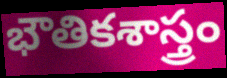
భౌతికశాస్త్రం